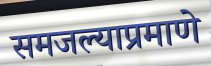
समजल्याप्रमाणे